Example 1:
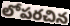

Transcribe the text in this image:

లోపరచిన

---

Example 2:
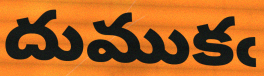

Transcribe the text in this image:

దుముకఁ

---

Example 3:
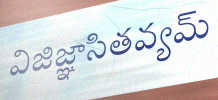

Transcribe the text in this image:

విజిజ్ఞాసితవ్యమ్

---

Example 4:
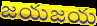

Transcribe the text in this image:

జయజయ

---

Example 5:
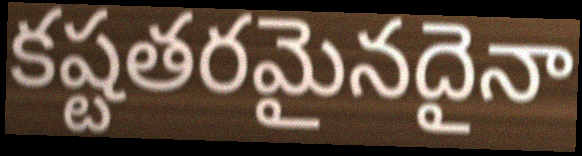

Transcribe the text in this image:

కష్టతరమైనదైనా